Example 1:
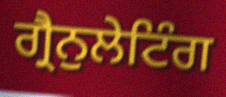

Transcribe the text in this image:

ਗ੍ਰੈਨੁਲੇਟਿੰਗ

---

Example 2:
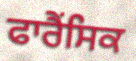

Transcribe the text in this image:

ਫਾਰੈਂਸਿਕ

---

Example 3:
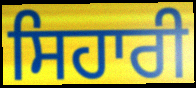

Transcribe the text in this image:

ਸਿਹਾਰੀ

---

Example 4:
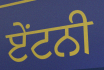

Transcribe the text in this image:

ਏਂਟਨੀ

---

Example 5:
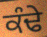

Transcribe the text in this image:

ਕੰਢੇ